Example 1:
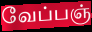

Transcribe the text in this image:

வேப்பஞ்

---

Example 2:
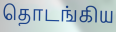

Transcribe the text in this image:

தொடங்கிய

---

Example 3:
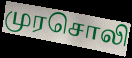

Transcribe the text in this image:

முரசொலி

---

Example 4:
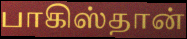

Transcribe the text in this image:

பாகிஸ்தான்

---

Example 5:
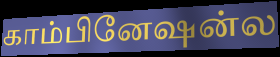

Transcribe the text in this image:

காம்பினேஷன்ல